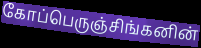
கோப்பெருஞ்சிங்கனின்